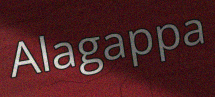
Alagappa